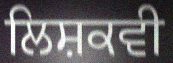
ਲਿਸ਼ਕਵੀ